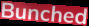
Bunched